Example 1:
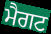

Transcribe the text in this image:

ਮੈਗਟ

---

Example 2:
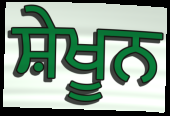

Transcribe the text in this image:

ਸ਼ੇਖੂਨ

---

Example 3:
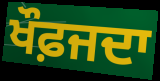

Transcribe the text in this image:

ਖੌਫ਼ਜਦਾ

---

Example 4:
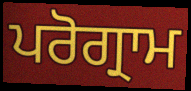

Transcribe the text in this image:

ਪਰੋਗ੍ਰਾਮ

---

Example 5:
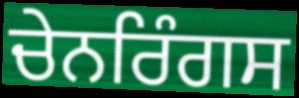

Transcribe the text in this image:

ਚੇਨਰਿੰਗਸ